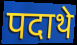
पदाथे